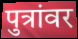
पुत्रांवर